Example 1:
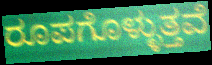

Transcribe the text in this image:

ರೂಪಗೊಳ್ಳುತ್ತವೆ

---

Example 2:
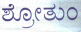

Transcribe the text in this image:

ಶ್ರೋತುಂ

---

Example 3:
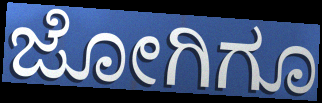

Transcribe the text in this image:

ಜೋಗಿಗೂ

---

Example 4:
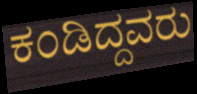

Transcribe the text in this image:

ಕಂಡಿದ್ದವರು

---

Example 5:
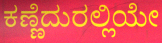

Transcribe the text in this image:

ಕಣ್ಣೆದುರಲ್ಲಿಯೇ